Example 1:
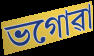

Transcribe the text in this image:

ভগোৱা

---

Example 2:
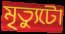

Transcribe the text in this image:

মৃত্যুটো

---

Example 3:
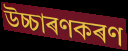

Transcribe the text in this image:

উচ্চাৰণকৰণ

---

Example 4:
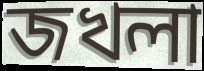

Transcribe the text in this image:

জখলা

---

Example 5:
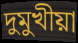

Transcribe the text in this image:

দুমুখীয়া